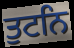
ਤੁਟਨਿ